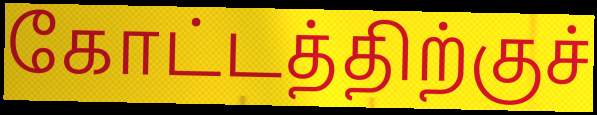
கோட்டத்திற்குச்